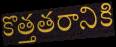
కొత్తతరానికి